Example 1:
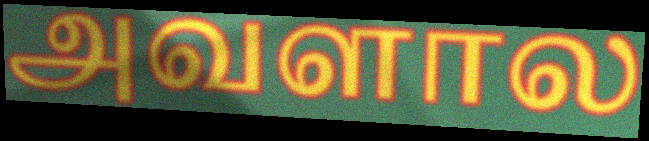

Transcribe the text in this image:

அவளால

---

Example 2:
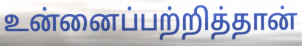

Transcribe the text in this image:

உன்னைப்பற்றித்தான்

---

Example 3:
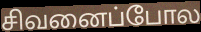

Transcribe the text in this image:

சிவனைப்போல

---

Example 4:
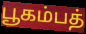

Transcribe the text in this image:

பூகம்பத்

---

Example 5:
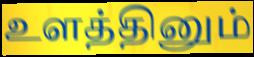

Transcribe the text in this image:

உளத்தினும்